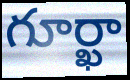
గూర్ఖా